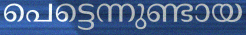
പെട്ടെന്നുണ്ടായ